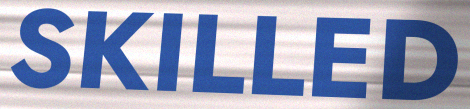
SKILLED